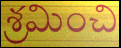
శ్రమించి